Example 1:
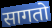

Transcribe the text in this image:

सागतो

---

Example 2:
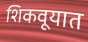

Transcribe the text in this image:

शिकवूयात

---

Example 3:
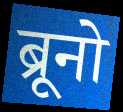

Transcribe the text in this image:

ब्रूनो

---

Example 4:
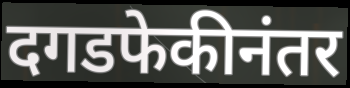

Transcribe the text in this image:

दगडफेकीनंतर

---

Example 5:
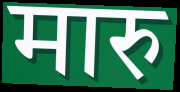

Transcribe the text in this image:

मारु